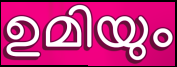
ഉമിയും